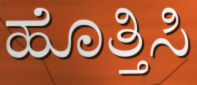
ಹೊತ್ತಿಸಿ